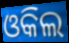
ଓକିଲ